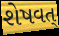
શેષવત્